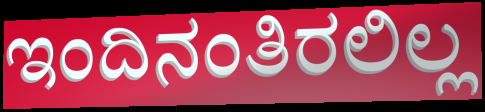
ಇಂದಿನಂತಿರಲಿಲ್ಲ